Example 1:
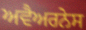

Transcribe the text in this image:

ਅਵੈਅਰਨੇਸ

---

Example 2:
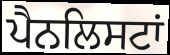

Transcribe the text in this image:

ਪੈਨਲਿਸਟਾਂ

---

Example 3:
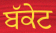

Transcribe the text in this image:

ਬੱਕੇਟ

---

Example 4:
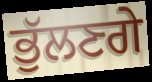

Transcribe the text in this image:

ਭੁੱਲਣਗੇ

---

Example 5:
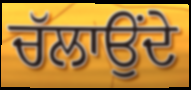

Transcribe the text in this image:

ਚੱਲਾਉਂਦੇ